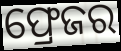
ଫ୍ରେଜର